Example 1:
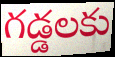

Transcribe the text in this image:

గడ్డలకు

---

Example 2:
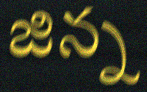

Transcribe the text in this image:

జిన్న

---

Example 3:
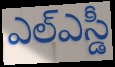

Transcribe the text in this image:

ఎల్ఎస్డీ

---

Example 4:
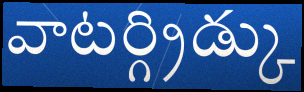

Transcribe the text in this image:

వాటర్గ్రిడ్కు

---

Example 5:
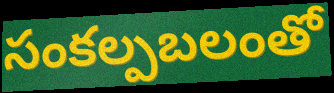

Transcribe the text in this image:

సంకల్పబలంతో